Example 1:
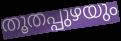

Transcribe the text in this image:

തൂതപ്പുഴയും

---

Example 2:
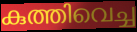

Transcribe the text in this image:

കുത്തിവെച്ച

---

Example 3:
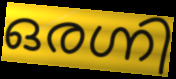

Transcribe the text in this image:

ഒരഗ്നി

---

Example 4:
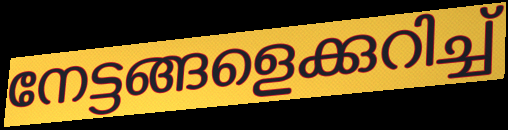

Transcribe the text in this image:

നേട്ടങ്ങളെക്കുറിച്ച്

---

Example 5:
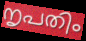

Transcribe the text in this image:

നൃപതിം